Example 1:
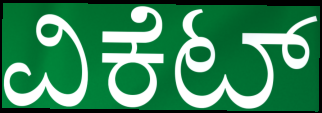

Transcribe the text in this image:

ವಿಕೆಟ್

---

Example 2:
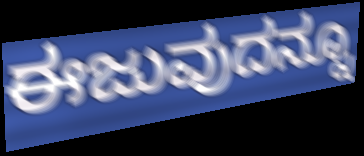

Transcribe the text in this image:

ಈಜುವುದನ್ನೂ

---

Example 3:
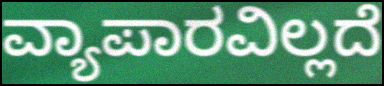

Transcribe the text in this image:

ವ್ಯಾಪಾರವಿಲ್ಲದೆ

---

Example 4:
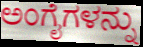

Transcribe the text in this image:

ಅಂಗೈಗಳನ್ನು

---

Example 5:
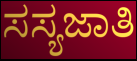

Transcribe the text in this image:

ಸಸ್ಯಜಾತಿ